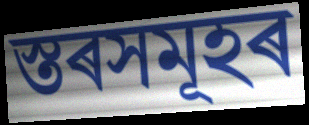
স্তৰসমূহৰ